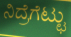
ನಿದ್ರೆಗೆಟ್ಟು